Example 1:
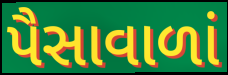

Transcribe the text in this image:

પૈસાવાળાં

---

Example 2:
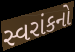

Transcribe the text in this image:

સ્વરાંકનો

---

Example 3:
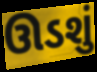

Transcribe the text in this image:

ઊડશું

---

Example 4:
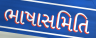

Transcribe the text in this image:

ભાષાસમિતિ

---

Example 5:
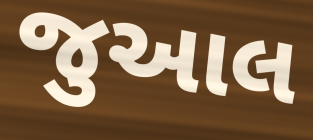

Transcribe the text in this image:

જુઆલ